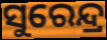
ସୁରେନ୍ଦ୍ର